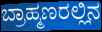
ಬ್ರಾಹ್ಮಣರಲ್ಲಿನ